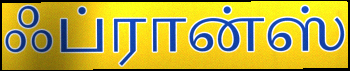
ஃப்ரான்ஸ்